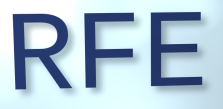
RFE